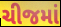
ચીજમાં